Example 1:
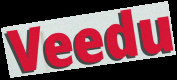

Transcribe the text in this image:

Veedu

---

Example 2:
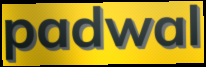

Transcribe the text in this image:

padwal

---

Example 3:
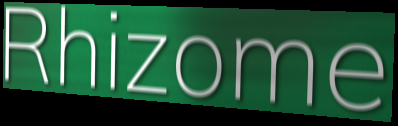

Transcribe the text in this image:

Rhizome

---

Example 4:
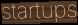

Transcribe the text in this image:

startups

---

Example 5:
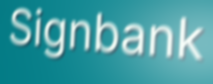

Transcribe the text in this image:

Signbank